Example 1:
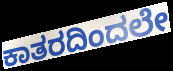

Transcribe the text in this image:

ಕಾತರದಿಂದಲೇ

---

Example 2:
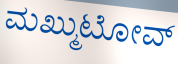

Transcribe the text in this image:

ಮಖ್ಮುಟೋವ್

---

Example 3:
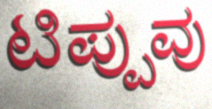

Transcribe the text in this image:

ಟಿಪ್ಪುವು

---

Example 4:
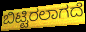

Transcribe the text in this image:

ಬಿಟ್ಟಿರಲಾಗದೆ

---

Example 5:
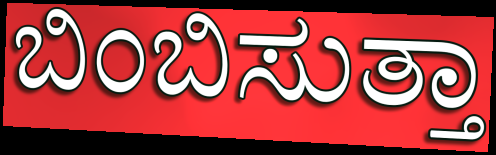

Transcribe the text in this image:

ಬಿಂಬಿಸುತ್ತಾ